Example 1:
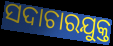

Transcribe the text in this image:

ସଦାଚାରଯୁକ୍ତ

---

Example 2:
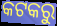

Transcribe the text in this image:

କଟକରୁ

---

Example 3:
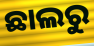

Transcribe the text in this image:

ଛାଲରୁ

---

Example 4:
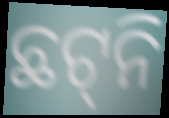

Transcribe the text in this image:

ଛଟ୍‌ନି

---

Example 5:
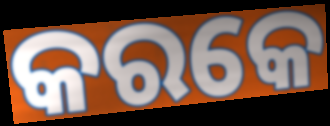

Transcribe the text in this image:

କରକେ